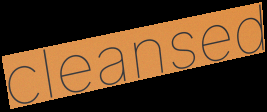
cleansed